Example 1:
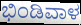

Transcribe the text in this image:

ಭಿಂಡಿವಾಳ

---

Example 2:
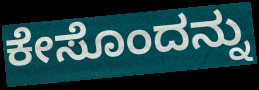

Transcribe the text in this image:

ಕೇಸೊಂದನ್ನು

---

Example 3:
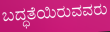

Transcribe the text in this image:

ಬದ್ಧತೆಯಿರುವವರು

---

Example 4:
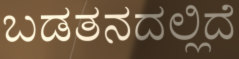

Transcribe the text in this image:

ಬಡತನದಲ್ಲಿದೆ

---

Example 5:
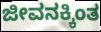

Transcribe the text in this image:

ಜೀವನಕ್ಕಿಂತ